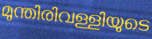
മുന്തിരിവള്ളിയുടെ